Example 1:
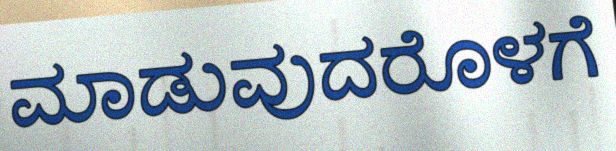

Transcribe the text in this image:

ಮಾಡುವುದರೊಳಗೆ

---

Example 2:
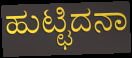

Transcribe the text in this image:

ಹುಟ್ಟಿದನಾ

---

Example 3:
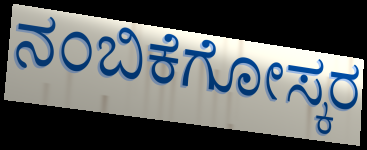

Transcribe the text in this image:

ನಂಬಿಕೆಗೋಸ್ಕರ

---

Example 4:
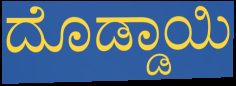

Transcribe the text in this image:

ದೊಡ್ಡಾಯಿ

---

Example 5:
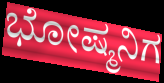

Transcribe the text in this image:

ಭೋಷ್ಮನಿಗ